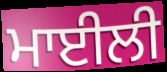
ਮਾਈਲੀ